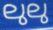
ലുലു